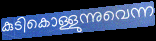
കുടികൊള്ളുന്നുവെന്ന